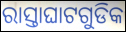
ରାସ୍ତାଘାଟଗୁଡିକ